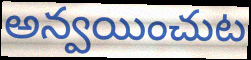
అన్వయించుట